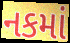
નકમાં